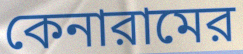
কেনারামের